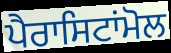
ਪੈਰਾਸਿਟਾਂਮੋਲ